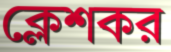
ক্লেশকর